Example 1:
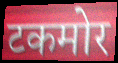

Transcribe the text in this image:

टकमोर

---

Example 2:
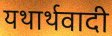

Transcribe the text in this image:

यथार्थवादी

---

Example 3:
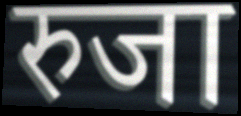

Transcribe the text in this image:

रुजा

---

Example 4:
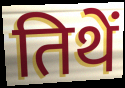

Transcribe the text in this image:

तिथें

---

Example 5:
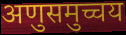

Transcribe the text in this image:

अणुसमुच्चय